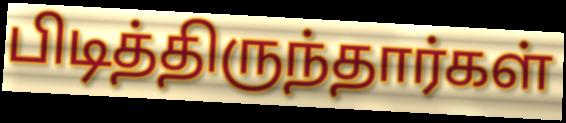
பிடித்திருந்தார்கள்